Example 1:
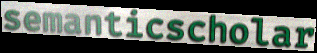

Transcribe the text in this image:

semanticscholar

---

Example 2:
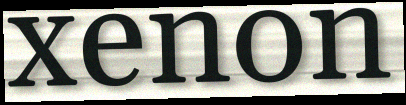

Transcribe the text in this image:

xenon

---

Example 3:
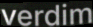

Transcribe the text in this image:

verdim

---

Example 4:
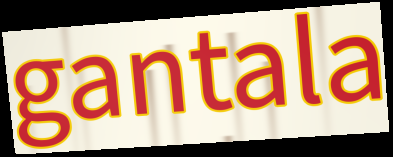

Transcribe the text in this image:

gantala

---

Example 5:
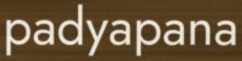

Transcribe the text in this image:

padyapana